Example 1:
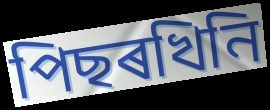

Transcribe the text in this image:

পিছৰখিনি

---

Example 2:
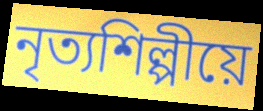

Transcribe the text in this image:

নৃত্যশিল্পীয়ে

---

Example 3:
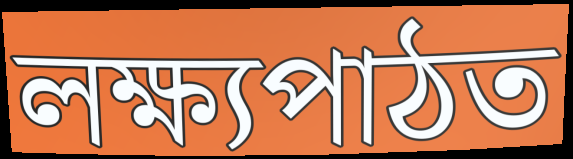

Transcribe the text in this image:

লক্ষ্যপাঠত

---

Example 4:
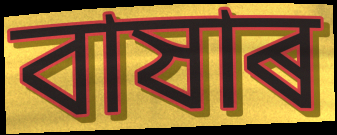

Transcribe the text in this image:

বাষাৰ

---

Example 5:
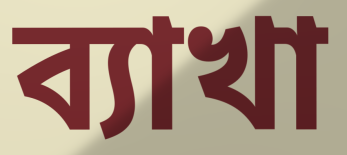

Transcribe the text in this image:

ব্যাখা